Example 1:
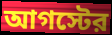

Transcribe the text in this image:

আগস্টের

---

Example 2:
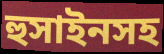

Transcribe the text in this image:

হুসাইনসহ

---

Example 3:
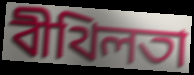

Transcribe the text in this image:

বীথিলতা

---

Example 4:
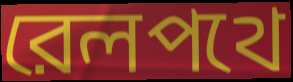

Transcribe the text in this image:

রেলপথে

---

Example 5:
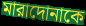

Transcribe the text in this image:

মারাদোনাকে